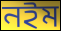
নইম